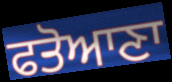
ਫਤੋਆਣਾ